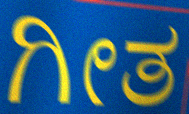
ಗೀತ